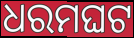
ଧରମଘଟ